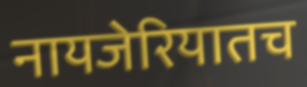
नायजेरियातच